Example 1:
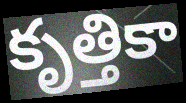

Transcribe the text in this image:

కృత్తికా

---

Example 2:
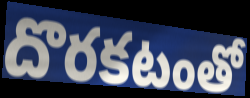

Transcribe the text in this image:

దొరకటంతో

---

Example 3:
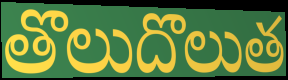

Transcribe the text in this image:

తొలుదొలుత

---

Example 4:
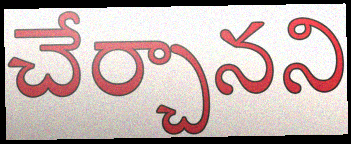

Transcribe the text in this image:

చేర్చానని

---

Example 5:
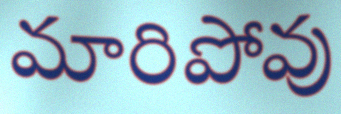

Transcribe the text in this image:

మారిపోవు